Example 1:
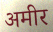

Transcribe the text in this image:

अमीर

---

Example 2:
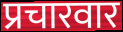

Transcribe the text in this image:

प्रचारवार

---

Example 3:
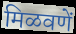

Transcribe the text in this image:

मिळवणें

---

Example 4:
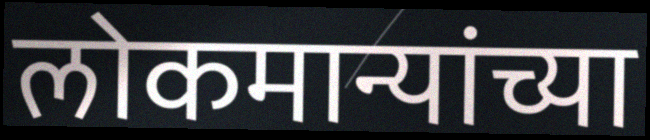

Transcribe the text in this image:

लोकमान्यांच्या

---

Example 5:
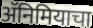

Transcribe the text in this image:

ॲनिमियाचा